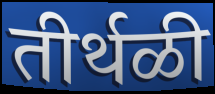
तीर्थळी